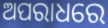
ଅପରାଧରେ